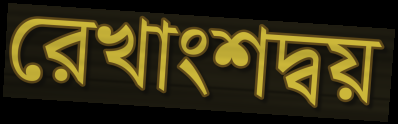
রেখাংশদ্বয়